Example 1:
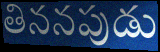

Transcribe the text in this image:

తిననపుడు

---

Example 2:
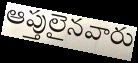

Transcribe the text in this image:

ఆప్తులైనవారు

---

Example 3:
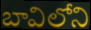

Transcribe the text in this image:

బావిలోని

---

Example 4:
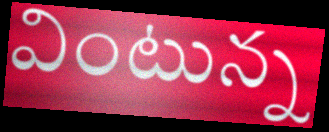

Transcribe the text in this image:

వింటున్న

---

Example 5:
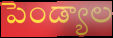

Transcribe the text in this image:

పెండ్యాల